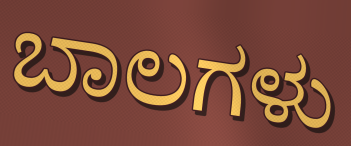
ಬಾಲಗಳು